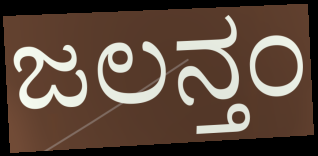
ಜಲನ್ತಂ